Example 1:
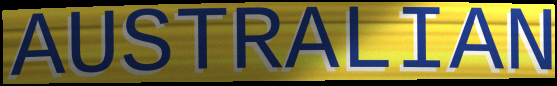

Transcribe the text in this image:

AUSTRALIAN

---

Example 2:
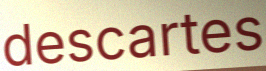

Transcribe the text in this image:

descartes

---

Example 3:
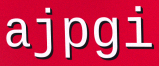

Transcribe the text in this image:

ajpgi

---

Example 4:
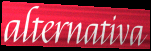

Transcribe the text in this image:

alternativa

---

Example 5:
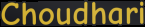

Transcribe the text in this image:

Choudhari